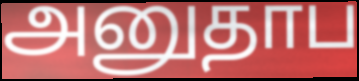
அனுதாப